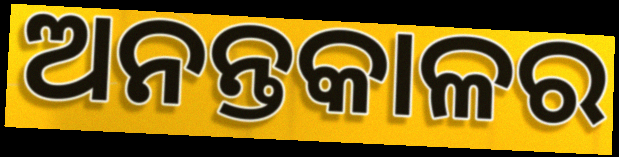
ଅନନ୍ତକାଳର